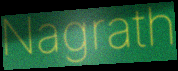
Nagrath